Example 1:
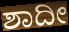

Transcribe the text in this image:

ಶಾದೀ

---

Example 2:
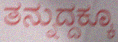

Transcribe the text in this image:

ತನ್ನುದ್ದಕ್ಕೂ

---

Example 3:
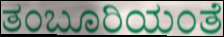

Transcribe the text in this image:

ತಂಬೂರಿಯಂತೆ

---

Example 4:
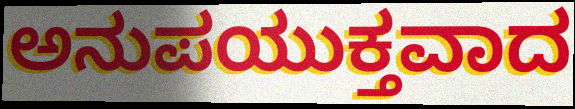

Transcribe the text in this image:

ಅನುಪಯುಕ್ತವಾದ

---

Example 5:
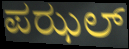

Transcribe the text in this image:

ಪಝಲ್